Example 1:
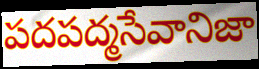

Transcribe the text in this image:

పదపద్మసేవానిజా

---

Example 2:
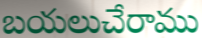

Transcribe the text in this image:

బయలుచేరాము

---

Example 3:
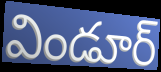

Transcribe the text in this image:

విండూర్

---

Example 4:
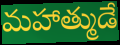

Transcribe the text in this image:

మహాత్ముడే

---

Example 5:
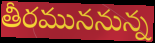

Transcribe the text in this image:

తీరముననున్న